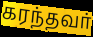
கரந்தவர்